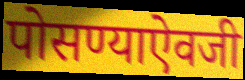
पोसण्याऐवजी